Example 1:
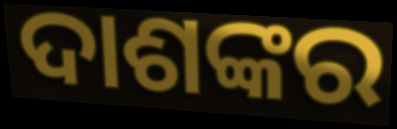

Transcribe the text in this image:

ଦାଶଙ୍କର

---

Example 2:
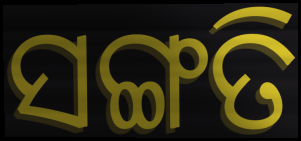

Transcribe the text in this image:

ସଙ୍ଗତି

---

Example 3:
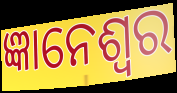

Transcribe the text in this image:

ଜ୍ଞାନେଶ୍ୱର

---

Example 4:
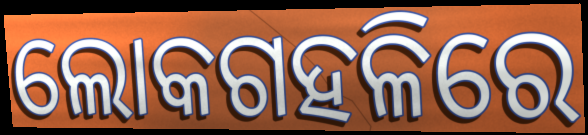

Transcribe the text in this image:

ଲୋକଗହଳିରେ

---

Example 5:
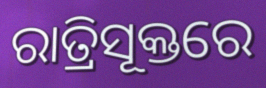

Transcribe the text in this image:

ରାତ୍ରିସୂକ୍ତରେ